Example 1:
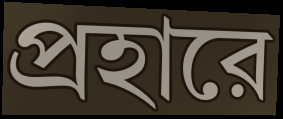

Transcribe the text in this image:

প্রহারে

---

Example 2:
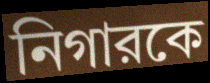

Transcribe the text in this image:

নিগারকে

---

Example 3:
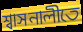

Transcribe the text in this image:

শ্বাসনালীতে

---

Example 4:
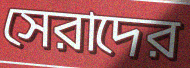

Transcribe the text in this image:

সেরাদের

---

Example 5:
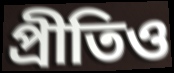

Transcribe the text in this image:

প্রীতিও